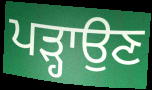
ਪੜ੍ਹਾਉਣ